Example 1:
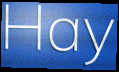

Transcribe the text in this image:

Hay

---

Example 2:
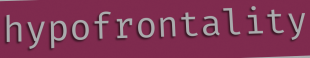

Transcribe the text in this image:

hypofrontality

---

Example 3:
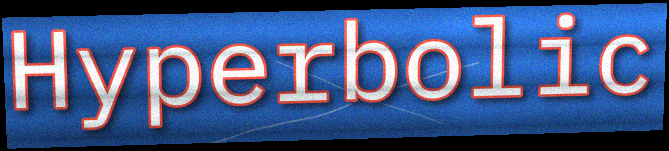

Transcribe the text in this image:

Hyperbolic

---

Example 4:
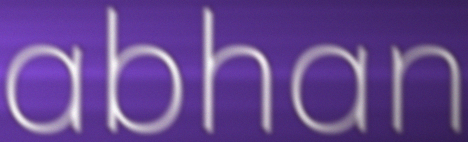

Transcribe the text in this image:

abhan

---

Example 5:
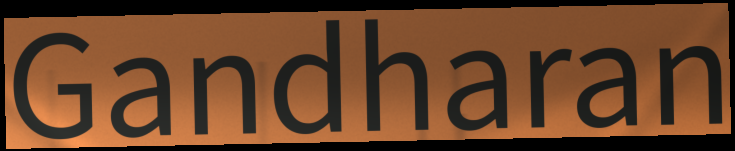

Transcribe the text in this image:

Gandharan